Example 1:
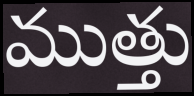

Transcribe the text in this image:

ముత్తు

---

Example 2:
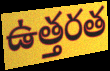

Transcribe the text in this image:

ఉత్తరత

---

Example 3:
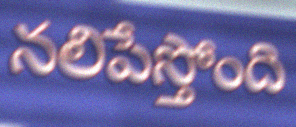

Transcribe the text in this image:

నలిపేస్తోంది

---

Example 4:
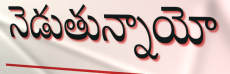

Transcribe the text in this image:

నెడుతున్నాయో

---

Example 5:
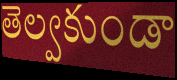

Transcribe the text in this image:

తెల్వకుండా